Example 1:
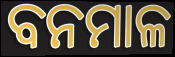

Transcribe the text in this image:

ବନମାଳ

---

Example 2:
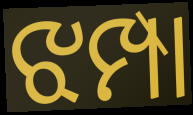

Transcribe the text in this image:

ଝମ୍ପା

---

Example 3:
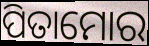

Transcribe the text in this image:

ପିତାମୋର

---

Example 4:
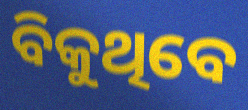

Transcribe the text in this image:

ବିକୁଥିବେ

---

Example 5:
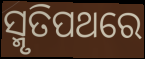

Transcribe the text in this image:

ସ୍ମୃତିପଥରେ